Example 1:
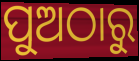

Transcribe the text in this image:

ପୁଅଠାରୁ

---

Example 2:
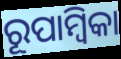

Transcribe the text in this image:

ରୂପାମ୍ୱିକା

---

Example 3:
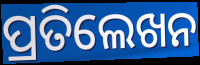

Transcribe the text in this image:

ପ୍ରତିଲେଖନ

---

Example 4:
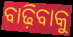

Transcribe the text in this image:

ବାଢ଼ିବାକୁ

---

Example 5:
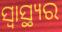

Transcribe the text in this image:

ସ୍ୱାସ୍ଥ୍ୟର